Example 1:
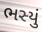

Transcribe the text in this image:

ભસ્યું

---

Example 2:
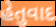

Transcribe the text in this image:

હેતુવાદ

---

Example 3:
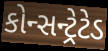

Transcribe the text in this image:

કોન્સન્ટ્રેટેડ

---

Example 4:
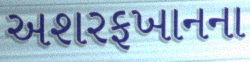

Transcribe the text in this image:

અશરફખાનના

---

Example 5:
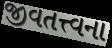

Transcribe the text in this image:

જીવતત્ત્વના